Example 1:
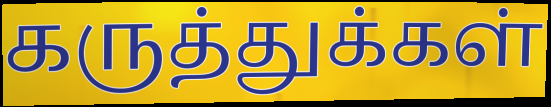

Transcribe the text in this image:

கருத்துக்கள்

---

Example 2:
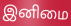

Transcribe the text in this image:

இனிமை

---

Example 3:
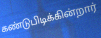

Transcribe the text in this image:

கண்டுபிடிக்கின்றார்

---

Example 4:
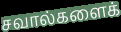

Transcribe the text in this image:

சவால்களைக்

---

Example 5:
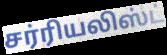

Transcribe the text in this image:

சர்ரியலிஸ்ட்